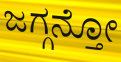
ಜಗ್ಗನ್ತೋ